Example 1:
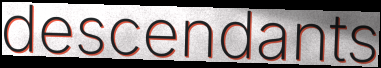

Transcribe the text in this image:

descendants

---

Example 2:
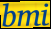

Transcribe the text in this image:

bmi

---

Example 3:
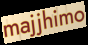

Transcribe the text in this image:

majjhimo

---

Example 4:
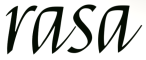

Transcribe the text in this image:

rasa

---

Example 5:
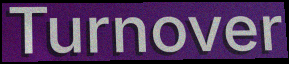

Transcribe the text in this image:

Turnover